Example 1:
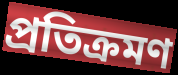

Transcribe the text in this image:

প্রতিক্রমণ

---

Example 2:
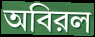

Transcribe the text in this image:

অবিরল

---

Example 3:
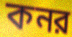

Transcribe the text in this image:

কনর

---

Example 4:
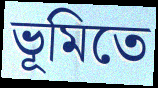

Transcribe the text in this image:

ভূমিতে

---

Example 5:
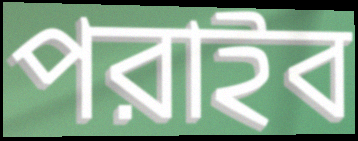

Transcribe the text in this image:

পরাইব